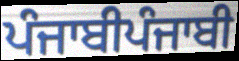
ਪੰਜਾਬੀਪੰਜਾਬੀ